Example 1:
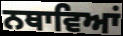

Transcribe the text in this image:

ਨਥਾਵਿਆਂ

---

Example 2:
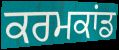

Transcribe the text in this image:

ਕਰਮਕਾਂਡ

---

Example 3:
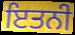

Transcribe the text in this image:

ਇਤਨੀ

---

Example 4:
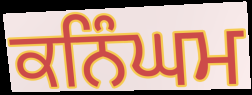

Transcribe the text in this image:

ਕਨਿੰਘਮ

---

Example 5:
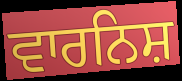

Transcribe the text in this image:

ਵਾਰਨਿਸ਼